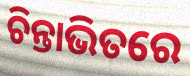
ଚିନ୍ତାଭିତରେ